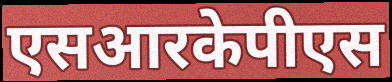
एसआरकेपीएस